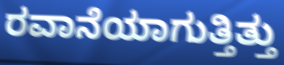
ರವಾನೆಯಾಗುತ್ತಿತ್ತು